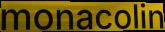
monacolin